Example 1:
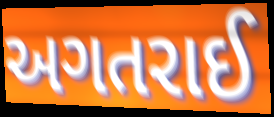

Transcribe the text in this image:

અગતરાઈ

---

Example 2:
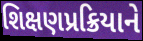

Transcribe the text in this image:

શિક્ષણપ્રક્રિયાને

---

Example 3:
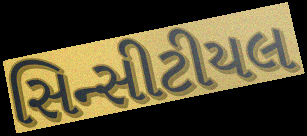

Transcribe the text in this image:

સિન્સીટીયલ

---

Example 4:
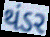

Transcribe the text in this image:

થંડર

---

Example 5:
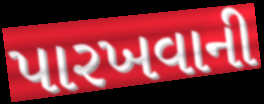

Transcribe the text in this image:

પારખવાની